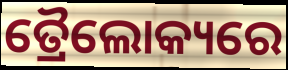
ତ୍ରୈଲୋକ୍ୟରେ